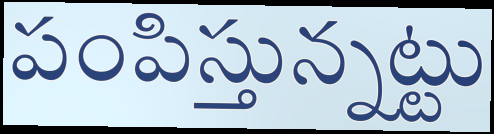
పంపిస్తున్నట్టు